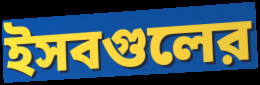
ইসবগুলের